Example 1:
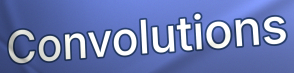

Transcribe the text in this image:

Convolutions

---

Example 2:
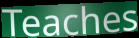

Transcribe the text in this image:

Teaches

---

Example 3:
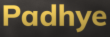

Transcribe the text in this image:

Padhye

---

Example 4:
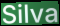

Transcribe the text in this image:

Silva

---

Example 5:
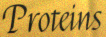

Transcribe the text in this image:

Proteins